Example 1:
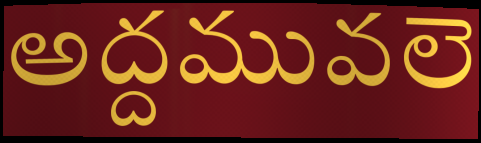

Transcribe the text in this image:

అద్దమువలె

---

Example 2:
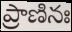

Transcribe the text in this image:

ప్రాణినః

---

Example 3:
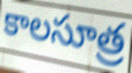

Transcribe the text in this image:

కాలసూత్ర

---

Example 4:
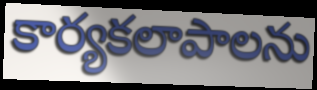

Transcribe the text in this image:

కార్యకలాపాలను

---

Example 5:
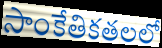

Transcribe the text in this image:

సాంకేతికతలలో